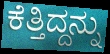
ಕೆತ್ತಿದ್ದನ್ನು